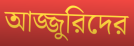
আজ্জুরিদের